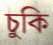
চুকি